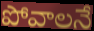
పోవాలనే